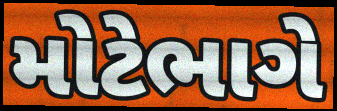
મોટેભાગે